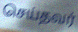
செய்தவர்